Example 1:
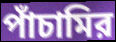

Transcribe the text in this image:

পাঁচামির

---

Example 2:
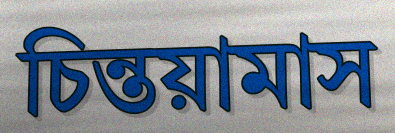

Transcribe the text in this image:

চিন্তয়ামাস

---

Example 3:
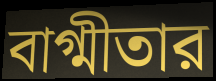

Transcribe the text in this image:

বাগ্মীতার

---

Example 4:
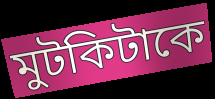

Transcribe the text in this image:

মুটকিটাকে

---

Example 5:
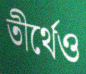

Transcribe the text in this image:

তীর্থেও